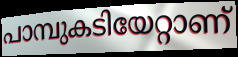
പാമ്പുകടിയേറ്റാണ്